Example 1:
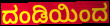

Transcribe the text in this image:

ದಂಡಿಯಿಂದ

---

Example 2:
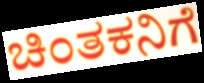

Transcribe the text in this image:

ಚಿಂತಕನಿಗೆ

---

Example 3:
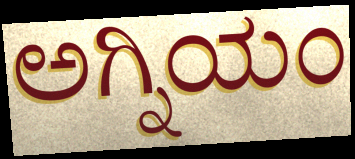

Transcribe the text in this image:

ಅಗ್ನಿಯಂ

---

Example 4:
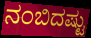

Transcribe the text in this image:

ನಂಬಿದಷ್ಟು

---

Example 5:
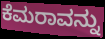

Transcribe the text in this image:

ಕೆಮರಾವನ್ನು